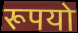
रूपयो